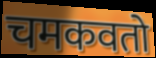
चमकवतो